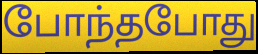
போந்தபோது